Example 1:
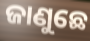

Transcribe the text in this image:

ଜାଣୁଛେ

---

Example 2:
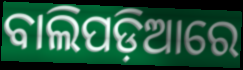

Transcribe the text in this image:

ବାଲିପଡ଼ିଆରେ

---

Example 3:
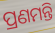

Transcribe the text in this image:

ପ୍ରଣମନ୍ତି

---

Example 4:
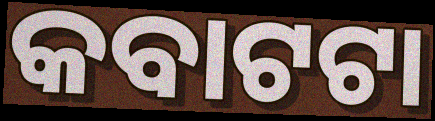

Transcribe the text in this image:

କବାଟଟା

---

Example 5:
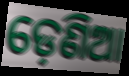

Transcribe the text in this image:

ଡ଼େଣିଆ